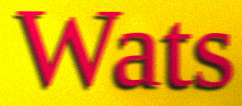
Wats